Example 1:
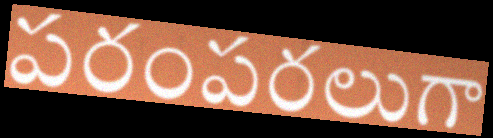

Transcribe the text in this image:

పరంపరలుగా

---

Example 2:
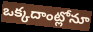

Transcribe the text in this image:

ఒక్కదాంట్లోనూ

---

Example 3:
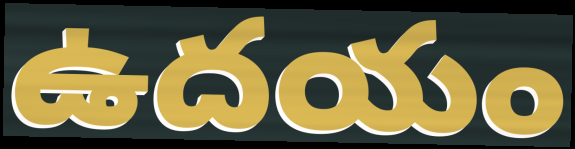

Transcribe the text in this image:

ఉదయం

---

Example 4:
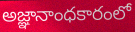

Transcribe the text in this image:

అజ్ఞానాంధకారంలో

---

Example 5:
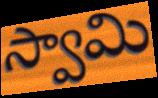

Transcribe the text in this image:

స్వామి